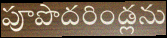
పూపొదరిండ్లను